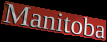
Manitoba